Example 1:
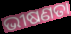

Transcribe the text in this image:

ଭୀଷଣତା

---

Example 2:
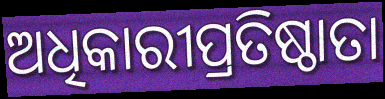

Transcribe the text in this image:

ଅଧିକାରୀପ୍ରତିଷ୍ଠାତା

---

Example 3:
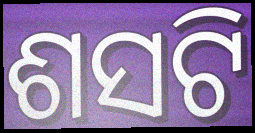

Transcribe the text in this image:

ଶସଟି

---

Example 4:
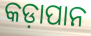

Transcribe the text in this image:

କଡ଼ାପାନ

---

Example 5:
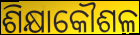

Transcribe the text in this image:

ଶିକ୍ଷାକୌଶଳ